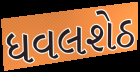
ધવલશેઠ